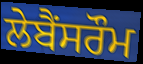
ਲੇਬੈਂਸਰੌਮ